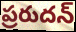
ప్రరుదన్